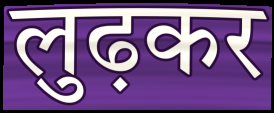
लुढ़कर